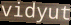
vidyut